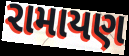
રામાયણ